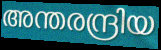
അന്തരന്ദ്രിയ